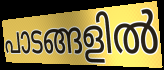
പാടങ്ങളിൽ